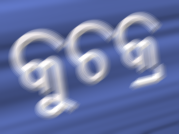
କୁଚକ୍ର